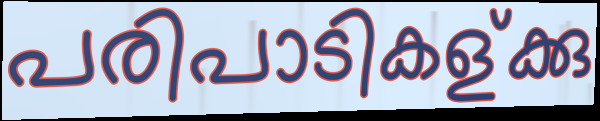
പരിപാടികള്ക്കു